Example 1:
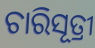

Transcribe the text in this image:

ଚାରିସୂତ୍ରୀ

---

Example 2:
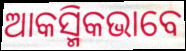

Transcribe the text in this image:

ଆକସ୍ମିକଭାବେ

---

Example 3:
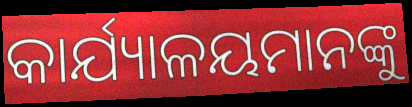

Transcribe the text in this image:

କାର୍ଯ୍ୟାଳୟମାନଙ୍କୁ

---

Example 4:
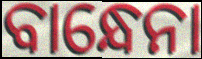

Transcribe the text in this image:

ବାନ୍ଧେନା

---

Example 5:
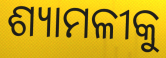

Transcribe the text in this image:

ଶ୍ୟାମଳୀକୁ